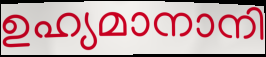
ഉഹ്യമാനാനി